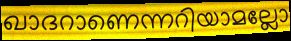
ഖാദറാണെന്നറിയാമല്ലോ